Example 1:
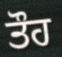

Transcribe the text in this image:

ਤੌਹ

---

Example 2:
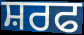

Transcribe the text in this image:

ਸ਼ਰਫ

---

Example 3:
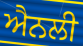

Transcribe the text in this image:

ਐਨਲੀ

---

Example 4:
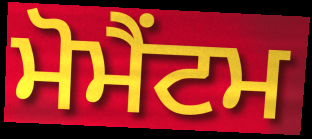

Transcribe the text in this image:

ਮੋਮੈਂਟਮ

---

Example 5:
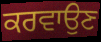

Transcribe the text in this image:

ਕਰਵਾਉਣ